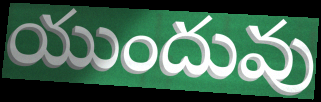
యుందువు